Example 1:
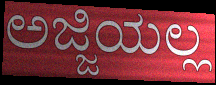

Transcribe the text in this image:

ಅಜ್ಜಿಯಲ್ಲ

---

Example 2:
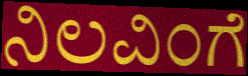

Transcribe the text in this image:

ನಿಲವಿಂಗೆ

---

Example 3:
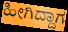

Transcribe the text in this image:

ಹೀಗಿದ್ದಾಗ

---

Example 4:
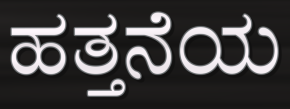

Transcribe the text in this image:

ಹತ್ತನೆಯ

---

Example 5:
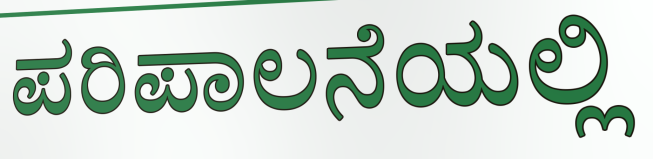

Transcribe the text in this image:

ಪರಿಪಾಲನೆಯಲ್ಲಿ